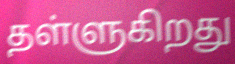
தள்ளுகிறது